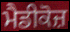
ਮੈਡੀਕੋਜ਼